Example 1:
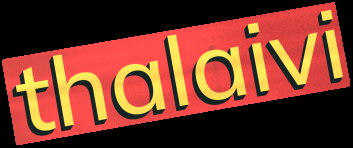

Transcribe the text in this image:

thalaivi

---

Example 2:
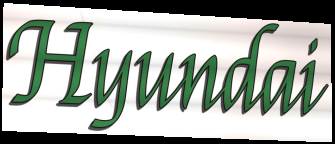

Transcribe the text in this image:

Hyundai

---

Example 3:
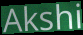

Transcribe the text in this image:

Akshi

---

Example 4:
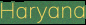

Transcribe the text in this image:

Haryana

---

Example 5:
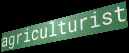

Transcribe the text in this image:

agriculturist